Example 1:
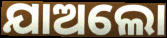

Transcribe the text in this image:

ଯାଅଲୋ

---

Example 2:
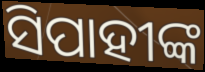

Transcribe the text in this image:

ସିପାହୀଙ୍କ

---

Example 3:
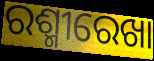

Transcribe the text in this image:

ରଶ୍ମୀରେଖା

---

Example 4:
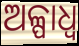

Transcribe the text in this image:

ଅଳ୍ପାଧ୍ଵ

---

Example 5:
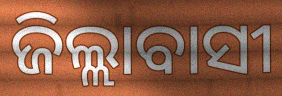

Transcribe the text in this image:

ଜିଲ୍ଲାବାସୀ